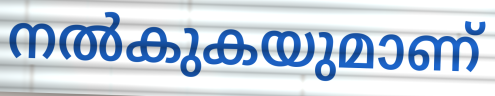
നൽകുകയുമാണ്